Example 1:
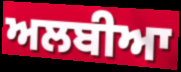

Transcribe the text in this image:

ਅਲਬੀਆ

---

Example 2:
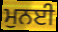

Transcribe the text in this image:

ਮੁਨਈ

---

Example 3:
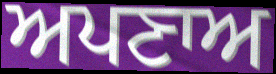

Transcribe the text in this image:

ਅਪਣਾਅ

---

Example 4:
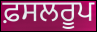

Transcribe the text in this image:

ਫ਼ਸਲਰੂਪ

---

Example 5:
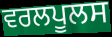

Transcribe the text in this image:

ਵਰਲਪੂਲਸ